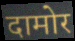
दामोर